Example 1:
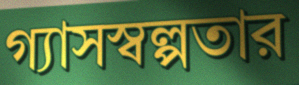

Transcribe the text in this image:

গ্যাসস্বল্পতার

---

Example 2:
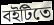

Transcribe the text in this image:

বইটিতে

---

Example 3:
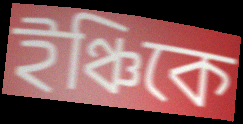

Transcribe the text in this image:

ইঞ্চিকে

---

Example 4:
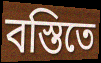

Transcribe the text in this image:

বস্তিতে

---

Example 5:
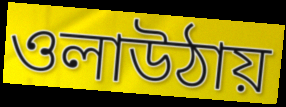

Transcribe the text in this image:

ওলাউঠায়